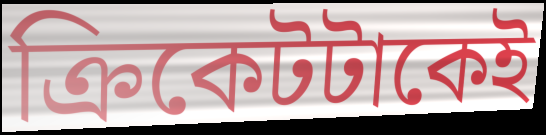
ক্রিকেটটাকেই